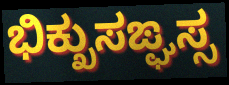
ಭಿಕ್ಖುಸಙ್ಘಸ್ಸ